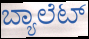
ಬ್ಯಾಲೆಟ್